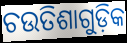
ଚଉତିଶାଗୁଡ଼ିକ